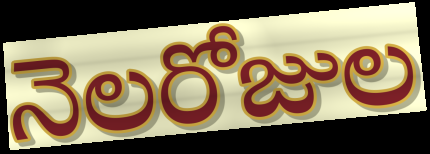
నెలరోజుల